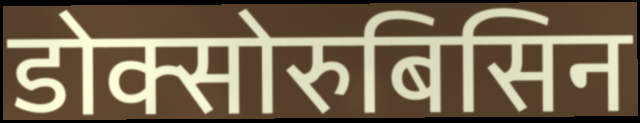
डोक्सोरुबिसिन